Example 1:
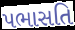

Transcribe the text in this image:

પભાસતિ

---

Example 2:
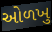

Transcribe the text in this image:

ઓળખુ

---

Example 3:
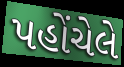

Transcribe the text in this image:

પહોંચેલે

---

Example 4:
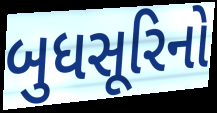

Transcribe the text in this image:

બુધસૂરિનો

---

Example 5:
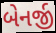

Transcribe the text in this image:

બેનર્જી